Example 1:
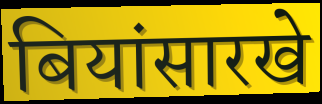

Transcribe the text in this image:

बियांसारखे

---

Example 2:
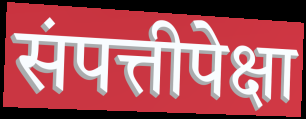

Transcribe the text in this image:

संपत्तीपेक्षा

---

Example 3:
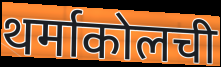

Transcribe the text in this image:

थर्माकोलची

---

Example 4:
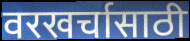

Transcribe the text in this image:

वरखर्चासाठी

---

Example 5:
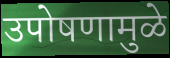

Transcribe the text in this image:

उपोषणामुळे